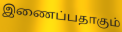
இணைப்பதாகும்